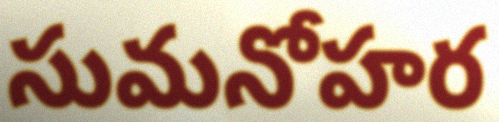
సుమనోహర